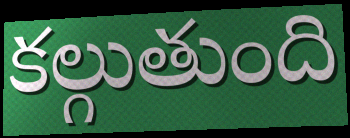
కల్గుతుంది